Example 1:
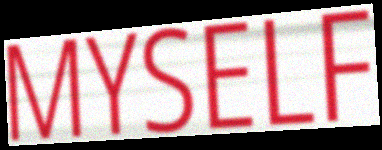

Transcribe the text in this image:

MYSELF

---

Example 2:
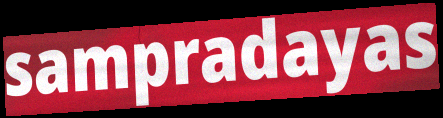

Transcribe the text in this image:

sampradayas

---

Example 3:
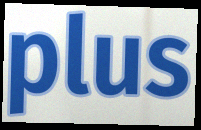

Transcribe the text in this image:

plus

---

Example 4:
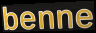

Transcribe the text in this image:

benne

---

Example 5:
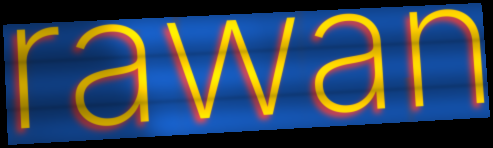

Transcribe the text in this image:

rawan